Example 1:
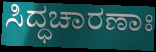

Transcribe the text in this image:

ಸಿದ್ಧಚಾರಣಾಃ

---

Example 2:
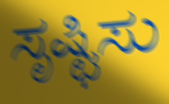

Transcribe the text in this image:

ಸೃಷ್ಟಿಸು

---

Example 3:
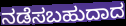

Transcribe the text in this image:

ನಡೆಸಬಹುದಾದ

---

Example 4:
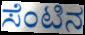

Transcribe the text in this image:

ಸೆಂಟಿನ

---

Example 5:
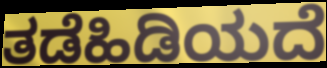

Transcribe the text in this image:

ತಡೆಹಿಡಿಯದೆ